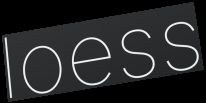
loess